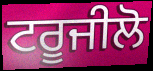
ਟਰੂਜੀਲੋ